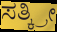
ಸತ್ಕ್ರೀ